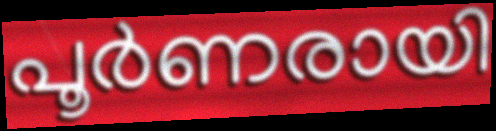
പൂർണരായി